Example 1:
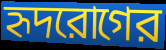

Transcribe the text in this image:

হৃদরোগের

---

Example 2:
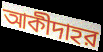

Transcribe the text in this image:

আকীদাহর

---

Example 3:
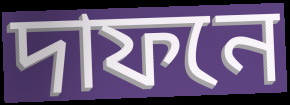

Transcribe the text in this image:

দাফনে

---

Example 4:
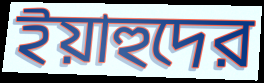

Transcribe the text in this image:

ইয়াহুদের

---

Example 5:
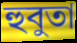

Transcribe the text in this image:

হুবুতা